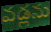
వడ్లను